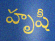
హృషీ